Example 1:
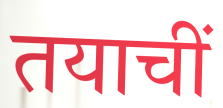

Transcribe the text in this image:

तयाचीं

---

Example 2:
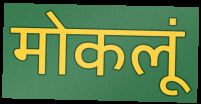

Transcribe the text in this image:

मोकलूं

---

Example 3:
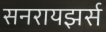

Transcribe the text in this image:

सनरायझर्स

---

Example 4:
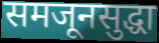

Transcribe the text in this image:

समजूनसुद्धा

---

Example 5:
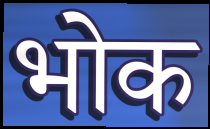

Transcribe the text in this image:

भोक